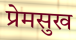
प्रेमसुख